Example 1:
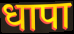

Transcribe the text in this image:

धापा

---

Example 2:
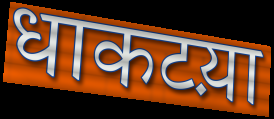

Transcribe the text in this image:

धाकटय़ा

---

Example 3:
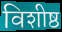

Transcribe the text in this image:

विशीष्ठ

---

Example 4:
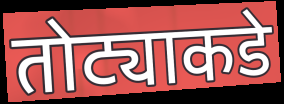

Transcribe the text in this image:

तोट्याकडे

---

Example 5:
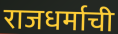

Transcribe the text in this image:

राजधर्माची